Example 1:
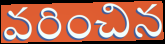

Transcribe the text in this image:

వరించిన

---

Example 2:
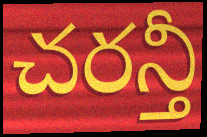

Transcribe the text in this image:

చరన్తీ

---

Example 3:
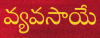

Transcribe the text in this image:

వ్యవసాయే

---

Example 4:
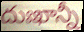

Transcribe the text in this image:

దుఃఖాన్నీ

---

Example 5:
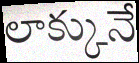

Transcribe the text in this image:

లాక్కునే